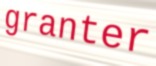
granter